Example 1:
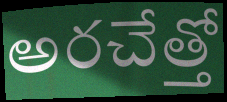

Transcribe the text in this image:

అరచేత్తో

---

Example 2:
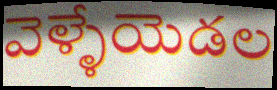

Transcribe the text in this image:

వెళ్ళేయెడల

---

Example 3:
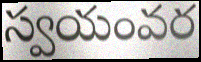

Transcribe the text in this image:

స్వయంవర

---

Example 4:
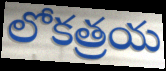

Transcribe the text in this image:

లోకత్రయ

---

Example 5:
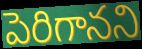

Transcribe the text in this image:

పెరిగానని